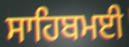
ਸਾਹਿਬਮਈ